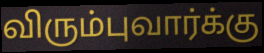
விரும்புவார்க்கு